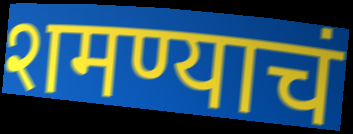
शमण्याचं